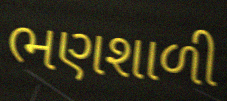
ભણશાળી